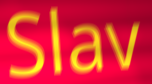
Slav